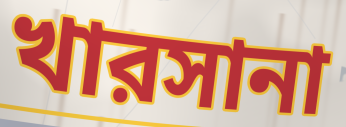
খারসানা